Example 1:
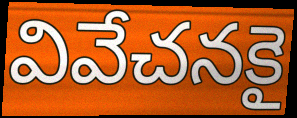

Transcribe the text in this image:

వివేచనకై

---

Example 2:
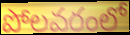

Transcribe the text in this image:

పోలవరంలో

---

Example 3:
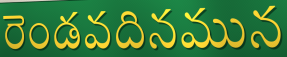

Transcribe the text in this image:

రెండవదినమున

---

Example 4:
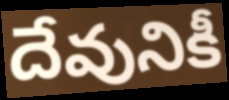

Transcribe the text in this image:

దేవునికీ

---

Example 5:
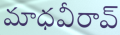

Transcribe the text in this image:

మాధవీరావ్